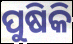
ପୁଷିକି